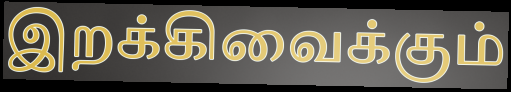
இறக்கிவைக்கும்